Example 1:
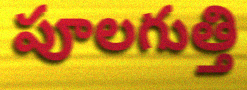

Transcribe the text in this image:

పూలగుత్తి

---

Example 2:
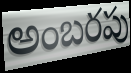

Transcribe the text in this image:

అంబరపు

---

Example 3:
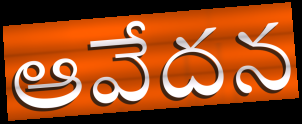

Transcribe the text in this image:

ఆవేదన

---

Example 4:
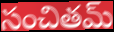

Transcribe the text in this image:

సంచితమ్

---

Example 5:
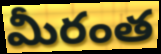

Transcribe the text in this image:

మీరంత